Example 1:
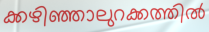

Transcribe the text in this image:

ക്കഴിഞ്ഞാലുറക്കത്തിൽ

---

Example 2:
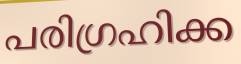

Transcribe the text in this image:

പരിഗ്രഹിക്ക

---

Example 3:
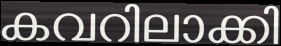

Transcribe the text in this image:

കവറിലാക്കി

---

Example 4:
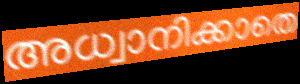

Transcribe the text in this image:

അധ്വാനിക്കാതെ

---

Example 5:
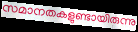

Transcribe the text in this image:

സമാനതകളുണ്ടായിരുന്നു